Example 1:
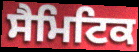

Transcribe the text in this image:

ਸੈਮਿਟਿਕ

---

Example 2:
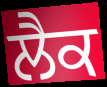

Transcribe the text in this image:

ਲੈਕ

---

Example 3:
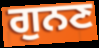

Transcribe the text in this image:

ਗੁਨਣ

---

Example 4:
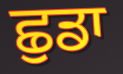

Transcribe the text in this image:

ਛੁਡਾ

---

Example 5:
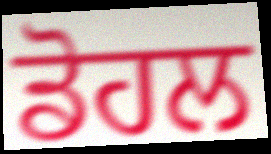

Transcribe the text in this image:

ਡੋਹਲ